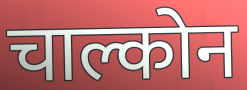
चाल्कोन